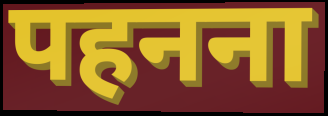
पहनना